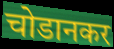
चोडानकर